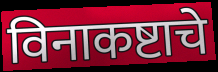
विनाकष्टाचे